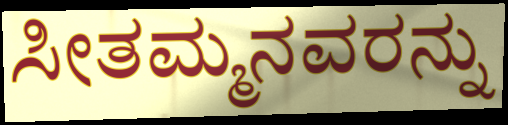
ಸೀತಮ್ಮನವರನ್ನು